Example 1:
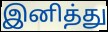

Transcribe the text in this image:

இனித்து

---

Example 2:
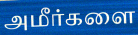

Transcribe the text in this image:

அமீர்களை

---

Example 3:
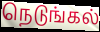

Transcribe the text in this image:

நெடுங்கல்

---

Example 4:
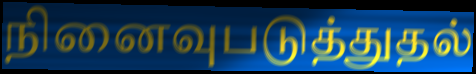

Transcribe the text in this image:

நினைவுபடுத்துதல்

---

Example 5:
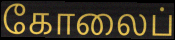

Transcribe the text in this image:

கோலைப்